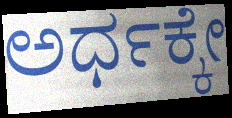
ಅರ್ಧಕ್ಕೇ